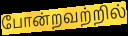
போன்றவற்றில்